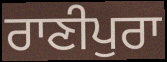
ਰਾਣੀਪੁਰਾ